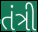
તંત્રી